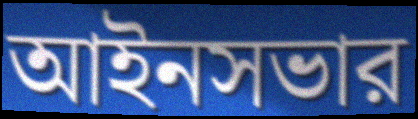
আইনসভার